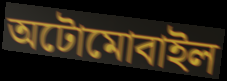
অটোমোবাইল